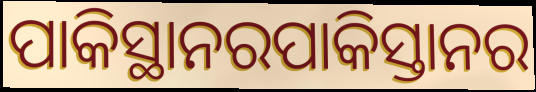
ପାକିସ୍ଥାନରପାକିସ୍ତାନର